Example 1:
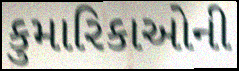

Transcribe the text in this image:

કુમારિકાઓની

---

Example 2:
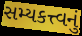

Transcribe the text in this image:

સમ્યકત્ત્વનું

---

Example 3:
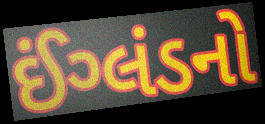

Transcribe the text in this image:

ઈંગ્લંડનો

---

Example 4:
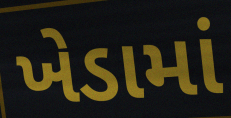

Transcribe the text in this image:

ખેડામાં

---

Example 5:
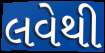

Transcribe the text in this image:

લવેથી